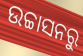
ଉଚ୍ଚାସନରୁ